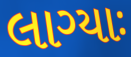
લાગ્યાઃ